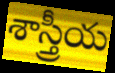
శాస్త్రీయ